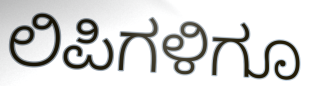
ಲಿಪಿಗಳಿಗೂ